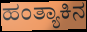
ಹಂತ್ಯಾಕಿನ